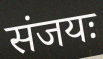
संजयः